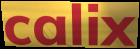
calix